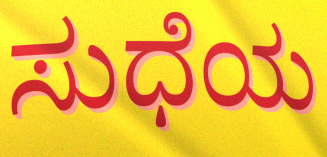
ಸುಧೆಯ